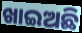
ଖାଇଅଛି